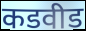
कडवीड